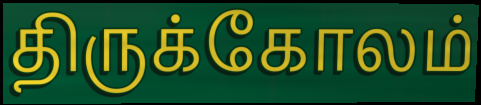
திருக்கோலம்